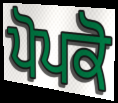
ਪੋਪਕੋ